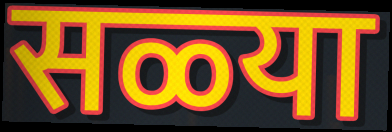
सळ्या